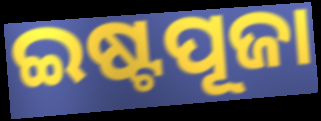
ଇଷ୍ଟପୂଜା